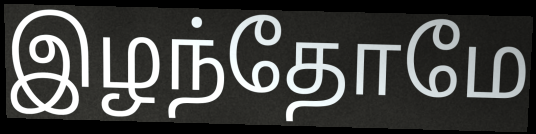
இழந்தோமே